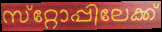
സ്‌റ്റോപ്പിലേക്ക്